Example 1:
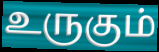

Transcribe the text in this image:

உருகும்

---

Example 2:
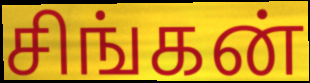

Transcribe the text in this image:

சிங்கன்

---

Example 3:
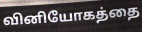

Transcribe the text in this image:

வினியோகத்தை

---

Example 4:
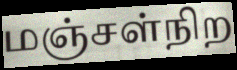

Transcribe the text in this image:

மஞ்சள்நிற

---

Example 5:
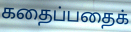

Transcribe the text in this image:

கதைப்பதைக்